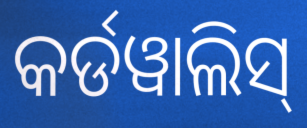
କର୍ଡୱାଲିସ୍